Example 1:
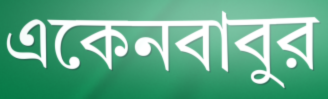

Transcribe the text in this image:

একেনবাবুর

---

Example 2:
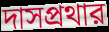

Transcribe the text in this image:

দাসপ্রথার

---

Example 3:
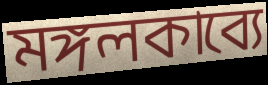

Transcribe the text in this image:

মঙ্গলকাব্যে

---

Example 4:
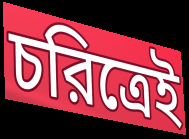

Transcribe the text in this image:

চরিত্রেই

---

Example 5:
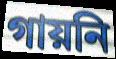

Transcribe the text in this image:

গায়নি